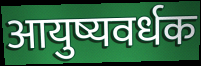
आयुष्यवर्धक